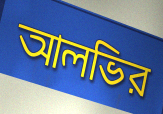
আলভির